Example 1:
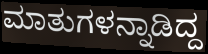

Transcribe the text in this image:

ಮಾತುಗಳನ್ನಾಡಿದ್ದ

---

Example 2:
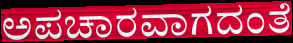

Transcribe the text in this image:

ಅಪಚಾರವಾಗದಂತೆ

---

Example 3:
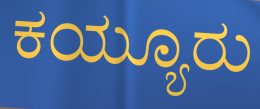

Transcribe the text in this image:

ಕಯ್ಯೂರು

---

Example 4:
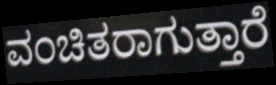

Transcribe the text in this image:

ವಂಚಿತರಾಗುತ್ತಾರೆ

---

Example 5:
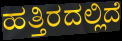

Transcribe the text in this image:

ಹತ್ತಿರದಲ್ಲಿದೆ